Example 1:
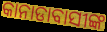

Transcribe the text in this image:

କାନାଡାବାସୀଙ୍କ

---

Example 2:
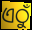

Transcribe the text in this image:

ଏଠୁଁ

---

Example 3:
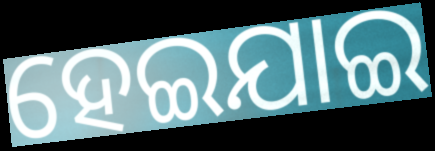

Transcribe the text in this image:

ହେଇଯାଇ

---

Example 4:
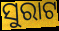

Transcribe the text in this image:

ସୁରାଟ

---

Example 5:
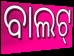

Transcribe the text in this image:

ବାଲଟ୍